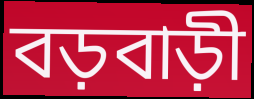
বড়বাড়ী